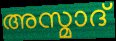
അസ്മാദ്